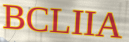
BCLIIA